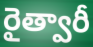
రైత్వారీ